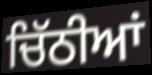
ਚਿੱਠੀਆਂ